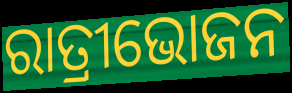
ରାତ୍ରୀଭୋଜନ